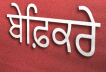
ਬੇਫ਼ਿਕਰੇ